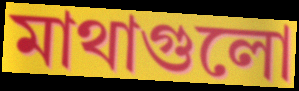
মাথাগুলো